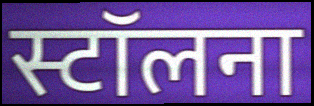
स्टॉलना